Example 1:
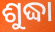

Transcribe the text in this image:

ଶୁଦ୍ଧା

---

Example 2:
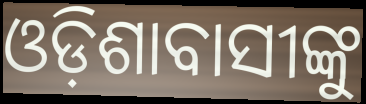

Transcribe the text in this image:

ଓଡ଼ିଶାବାସୀଙ୍କୁ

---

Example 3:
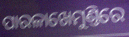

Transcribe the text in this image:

ପାରଳାଖେମୁଣ୍ତିରେ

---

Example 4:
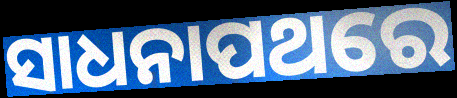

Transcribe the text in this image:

ସାଧନାପଥରେ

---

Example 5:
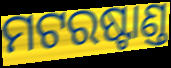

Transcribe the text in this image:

ମଟରଷ୍ଟାଣ୍ଡ